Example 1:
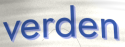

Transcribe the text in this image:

verden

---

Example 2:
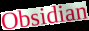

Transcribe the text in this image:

Obsidian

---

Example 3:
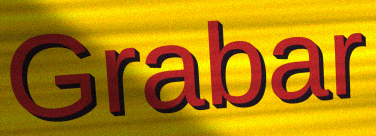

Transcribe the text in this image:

Grabar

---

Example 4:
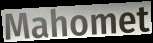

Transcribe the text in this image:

Mahomet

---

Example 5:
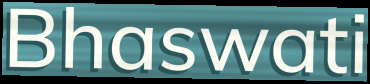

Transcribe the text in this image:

Bhaswati